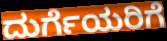
ದುರ್ಗೆಯರಿಗೆ